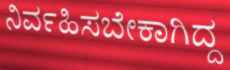
ನಿರ್ವಹಿಸಬೇಕಾಗಿದ್ದ